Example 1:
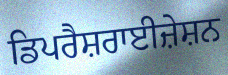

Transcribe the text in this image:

ਡਿਪਰੈਸ਼ਰਾਈਜ਼ੇਸ਼ਨ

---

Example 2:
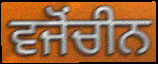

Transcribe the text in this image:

ਵਜੋਂਚੀਨ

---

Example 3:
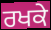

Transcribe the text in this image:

ਰਖਕੇ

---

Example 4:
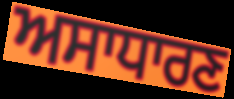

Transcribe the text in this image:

ਅਸਾਧਾਰਣ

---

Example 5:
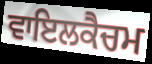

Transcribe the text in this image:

ਵਾਇਲਕੈਚਮ